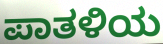
ಪಾತಳಿಯ